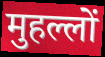
मुहल्लों